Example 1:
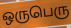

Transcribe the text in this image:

ஒருபெரு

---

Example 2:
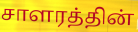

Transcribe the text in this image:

சாளரத்தின்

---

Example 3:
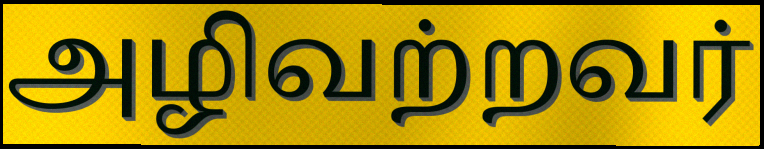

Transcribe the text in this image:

அழிவற்றவர்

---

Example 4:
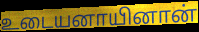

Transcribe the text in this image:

உடையனாயினான்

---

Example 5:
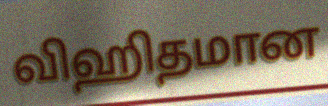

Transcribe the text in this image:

விஹிதமான